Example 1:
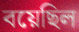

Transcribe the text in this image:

বয়েছিল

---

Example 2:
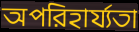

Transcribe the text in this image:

অপরিহার্য্যতা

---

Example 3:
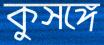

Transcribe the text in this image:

কুসঙ্গে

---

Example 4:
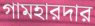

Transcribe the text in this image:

গামহারদার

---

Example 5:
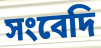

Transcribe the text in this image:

সংবেদি